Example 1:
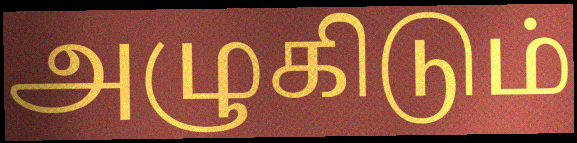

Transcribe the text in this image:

அழுகிடும்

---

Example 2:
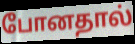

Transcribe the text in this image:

போனதால்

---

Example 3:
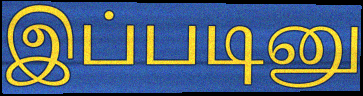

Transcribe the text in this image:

இப்படினு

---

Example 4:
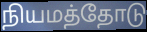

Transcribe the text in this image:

நியமத்தோடு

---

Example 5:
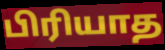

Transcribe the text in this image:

பிரியாத